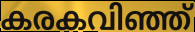
കരകവിഞ്ഞ്